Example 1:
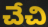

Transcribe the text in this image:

చేచి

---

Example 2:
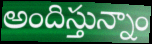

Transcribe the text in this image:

అందిస్తున్నాం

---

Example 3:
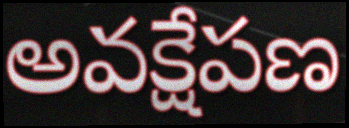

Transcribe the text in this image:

అవక్షేపణ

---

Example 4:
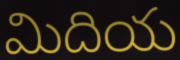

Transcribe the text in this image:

మిదియ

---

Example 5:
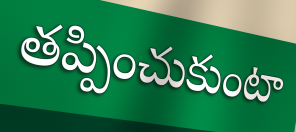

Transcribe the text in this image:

తప్పించుకుంటా